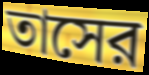
তাসের